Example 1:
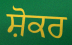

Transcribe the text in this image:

ਸ਼ੋਕਰ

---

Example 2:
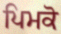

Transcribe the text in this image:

ਪਿਮਕੋ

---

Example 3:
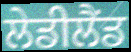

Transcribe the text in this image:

ਲੇਡੀਲੈਂਡ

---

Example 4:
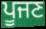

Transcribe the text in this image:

ਪੂਜਣ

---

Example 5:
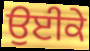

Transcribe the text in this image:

ਉਈਕੇ